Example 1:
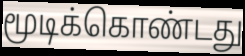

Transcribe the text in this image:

மூடிக்கொண்டது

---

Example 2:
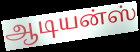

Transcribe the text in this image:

ஆடியன்ஸ்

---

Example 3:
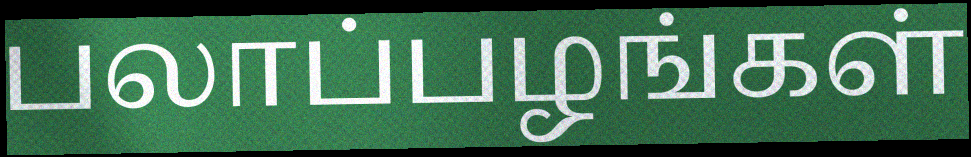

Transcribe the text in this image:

பலாப்பழங்கள்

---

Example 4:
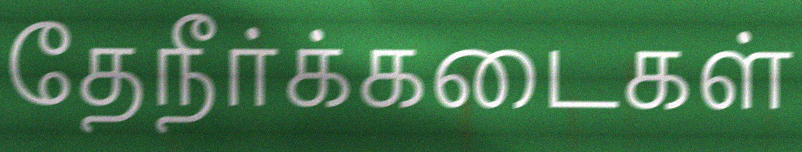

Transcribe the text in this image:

தேநீர்க்கடைகள்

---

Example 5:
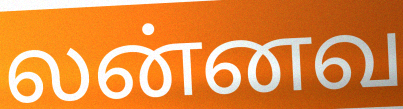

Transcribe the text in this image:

லன்னவ